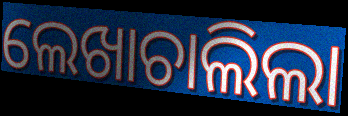
ଲେଖାଚାଲିଲା